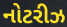
નોટરીઝ